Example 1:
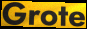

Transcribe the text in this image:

Grote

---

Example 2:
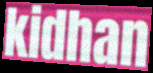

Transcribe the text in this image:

kidhan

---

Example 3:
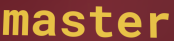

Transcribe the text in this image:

master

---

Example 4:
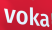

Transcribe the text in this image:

voka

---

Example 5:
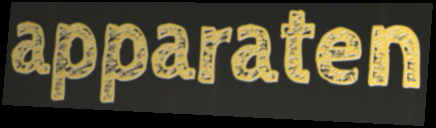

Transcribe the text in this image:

apparaten